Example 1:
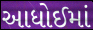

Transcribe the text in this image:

આધોઈમાં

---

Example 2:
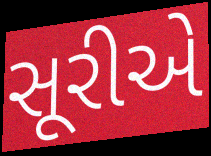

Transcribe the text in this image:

સૂરીએ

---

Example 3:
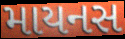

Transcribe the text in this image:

માયનસ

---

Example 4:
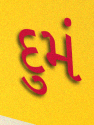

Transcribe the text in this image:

દુમં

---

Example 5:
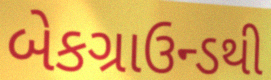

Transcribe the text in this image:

બેકગ્રાઉન્ડથી